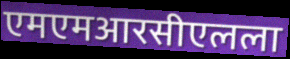
एमएमआरसीएलला